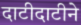
दाटीदाटीने